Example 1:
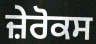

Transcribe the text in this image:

ਜ਼ੇਰੋਕਸ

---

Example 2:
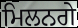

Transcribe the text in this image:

ਮਿਲਨਗੇ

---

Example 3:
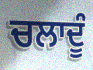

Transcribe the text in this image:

ਚਲਾਦੂੰ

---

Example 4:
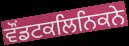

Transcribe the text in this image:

ਵੌਂਡਟਕਲਿਨਿਕਨੇ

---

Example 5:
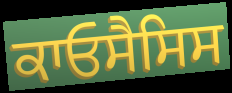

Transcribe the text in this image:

ਕਾਓਸੈਸਿਸ